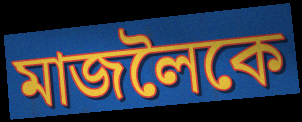
মাজলৈকে